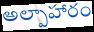
అల్పాహారం